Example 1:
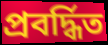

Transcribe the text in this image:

প্রবর্দ্ধিত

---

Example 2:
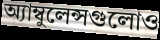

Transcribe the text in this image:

অ্যাম্বুলেন্সগুলোও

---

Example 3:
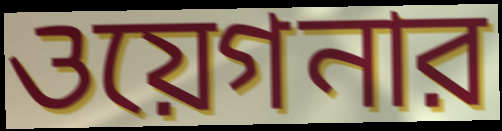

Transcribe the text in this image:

ওয়েগনার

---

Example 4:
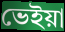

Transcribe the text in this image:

ভেইয়া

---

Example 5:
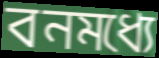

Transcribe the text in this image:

বনমধ্যে